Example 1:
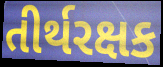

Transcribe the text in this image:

તીર્થરક્ષક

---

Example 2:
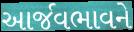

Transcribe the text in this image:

આર્જવભાવને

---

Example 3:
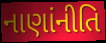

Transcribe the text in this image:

નાણાંનીતિ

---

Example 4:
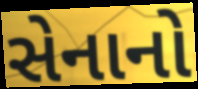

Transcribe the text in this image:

સેનાનો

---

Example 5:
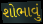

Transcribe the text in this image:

શોભાવું